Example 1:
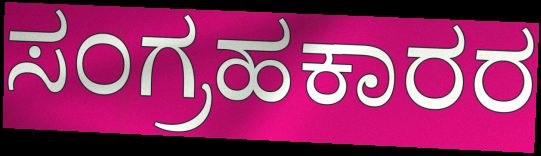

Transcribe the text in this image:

ಸಂಗ್ರಹಕಾರರ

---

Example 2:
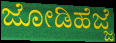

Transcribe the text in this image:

ಜೋಡಿಹೆಜ್ಜೆ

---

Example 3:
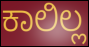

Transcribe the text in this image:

ಕಾಲಿಲ್ಲ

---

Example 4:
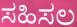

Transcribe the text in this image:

ಸಹಿಸಲ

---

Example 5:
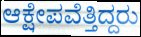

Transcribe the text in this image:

ಆಕ್ಷೇಪವೆತ್ತಿದ್ದರು